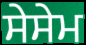
ਸੇਸੇਮ